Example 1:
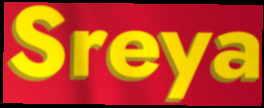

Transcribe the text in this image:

Sreya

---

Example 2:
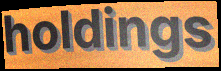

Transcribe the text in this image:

holdings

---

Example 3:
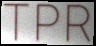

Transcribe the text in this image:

TPR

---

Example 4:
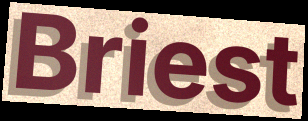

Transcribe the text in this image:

Briest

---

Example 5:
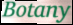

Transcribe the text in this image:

Botany